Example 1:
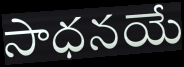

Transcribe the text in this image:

సాధనయే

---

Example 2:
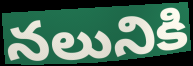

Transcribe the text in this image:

నలునికి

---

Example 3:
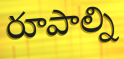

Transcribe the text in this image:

రూపాల్ని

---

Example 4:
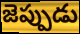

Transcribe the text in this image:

జెప్పుడు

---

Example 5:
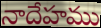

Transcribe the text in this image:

నాదేహము